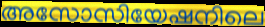
അസോസിയേഷനിലെ